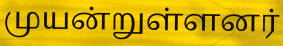
முயன்றுள்ளனர்